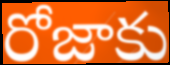
రోజాకు